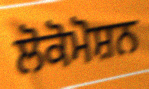
ਲੋਕੋਮੋਸ਼ਨ